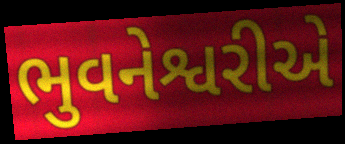
ભુવનેશ્વરીએ